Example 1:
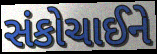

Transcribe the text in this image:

સંકોચાઈને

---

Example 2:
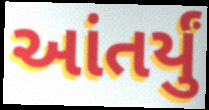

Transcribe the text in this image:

આંતર્યું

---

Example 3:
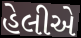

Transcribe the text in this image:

હેલીએ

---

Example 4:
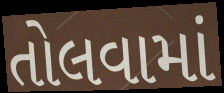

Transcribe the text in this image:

તોલવામાં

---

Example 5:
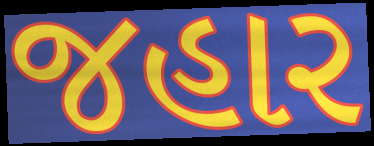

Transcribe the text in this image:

જહાર